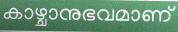
കാഴ്ചാനുഭവമാണ്